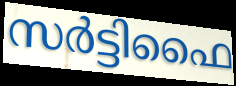
സർട്ടിഫൈ